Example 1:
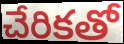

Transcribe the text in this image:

చేరికతో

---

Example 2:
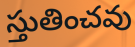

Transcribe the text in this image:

స్తుతించవు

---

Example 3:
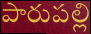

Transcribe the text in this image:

పారుపల్లి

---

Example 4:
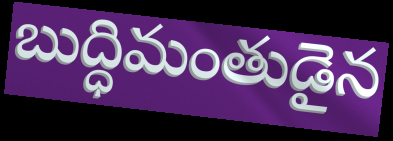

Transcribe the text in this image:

బుద్ధిమంతుడైన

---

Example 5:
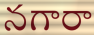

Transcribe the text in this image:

నగారా